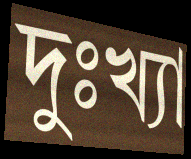
দুঃখ্যা